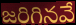
జరిగినవే